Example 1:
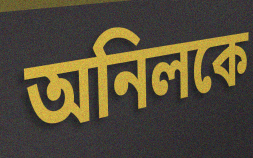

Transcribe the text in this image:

অনিলকে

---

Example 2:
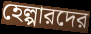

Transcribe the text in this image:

হেল্পারদের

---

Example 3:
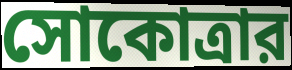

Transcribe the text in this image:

সোকোত্রার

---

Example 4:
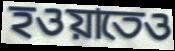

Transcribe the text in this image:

হওয়াতেও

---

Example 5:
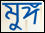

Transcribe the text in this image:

মুঙ্গ